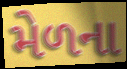
મેળના